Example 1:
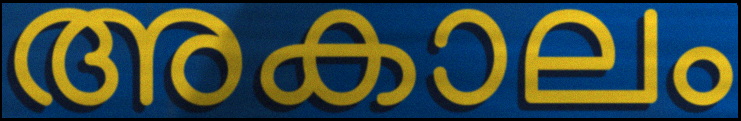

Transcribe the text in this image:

അകാലം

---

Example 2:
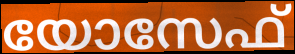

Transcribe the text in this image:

യോസേഫ്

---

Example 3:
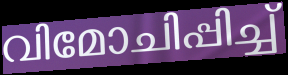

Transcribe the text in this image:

വിമോചിപ്പിച്ച്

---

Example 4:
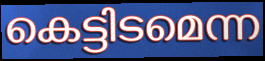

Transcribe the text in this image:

കെട്ടിടമെന്ന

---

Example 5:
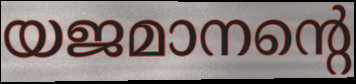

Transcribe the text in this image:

യജമാനന്റെ